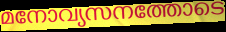
മനോവ്യസനത്തോടെ